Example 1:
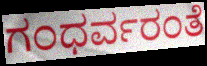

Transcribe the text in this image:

ಗಂಧರ್ವರಂತೆ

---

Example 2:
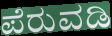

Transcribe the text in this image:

ಪೆರುವಡಿ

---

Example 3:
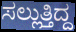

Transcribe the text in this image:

ಸಲ್ಲುತ್ತಿದ್ದ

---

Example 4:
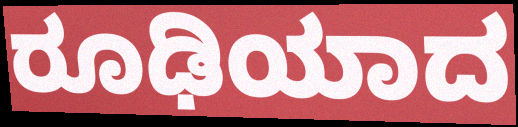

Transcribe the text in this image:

ರೂಢಿಯಾದ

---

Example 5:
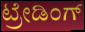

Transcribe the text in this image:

ಟ್ರೇಡಿಂಗ್